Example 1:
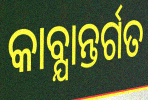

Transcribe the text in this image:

କାବ୍ଯାନ୍ତର୍ଗତ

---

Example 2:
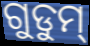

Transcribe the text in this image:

ଗୁଡୁମ୍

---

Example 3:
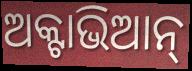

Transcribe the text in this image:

ଅକ୍ଟାଭିଆନ୍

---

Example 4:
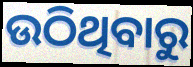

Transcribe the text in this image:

ଉଠିଥିବାରୁ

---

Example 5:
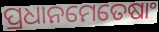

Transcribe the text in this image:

ପ୍ରଧାନମେତେଷାଂ